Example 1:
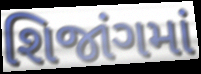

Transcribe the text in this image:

શિજાંગમાં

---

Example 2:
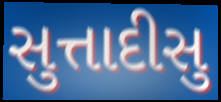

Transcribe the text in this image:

સુત્તાદીસુ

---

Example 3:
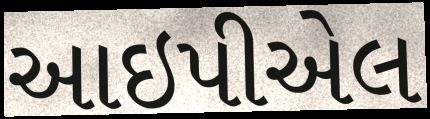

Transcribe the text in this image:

આઇપીએલ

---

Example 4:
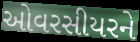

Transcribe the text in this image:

ઓવરસીયરને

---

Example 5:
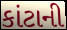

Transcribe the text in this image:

કાંટાની